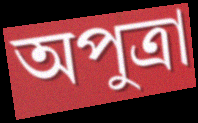
অপুত্রা